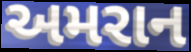
અમરાન